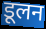
डूलन